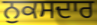
ਨੁਕਸਦਾਰ